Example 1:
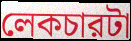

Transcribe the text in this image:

লেকচারটা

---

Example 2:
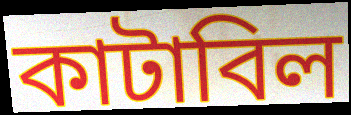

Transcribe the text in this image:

কাটাবিল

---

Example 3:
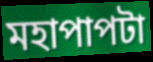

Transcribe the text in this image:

মহাপাপটা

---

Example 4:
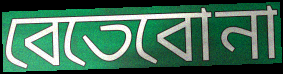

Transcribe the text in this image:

বেতেবোনা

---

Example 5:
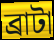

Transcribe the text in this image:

ব্রাটা